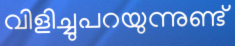
വിളിച്ചുപറയുന്നുണ്ട്